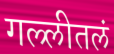
गल्लीतलं